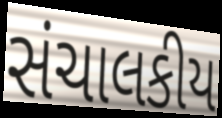
સંચાલકીય